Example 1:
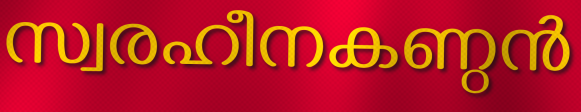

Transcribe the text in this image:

സ്വരഹീനകണ്ഠൻ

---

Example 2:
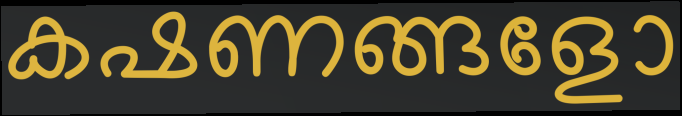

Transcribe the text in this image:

കഷണങ്ങളോ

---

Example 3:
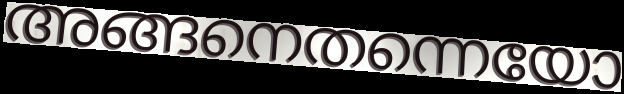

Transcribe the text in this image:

അങ്ങനെതന്നെയോ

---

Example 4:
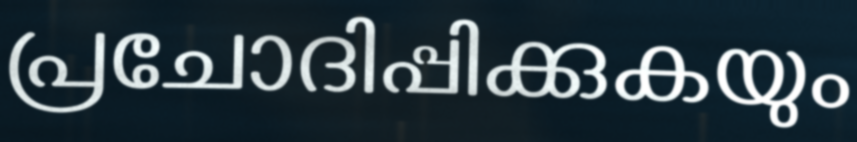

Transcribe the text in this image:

പ്രചോദിപ്പിക്കുകയും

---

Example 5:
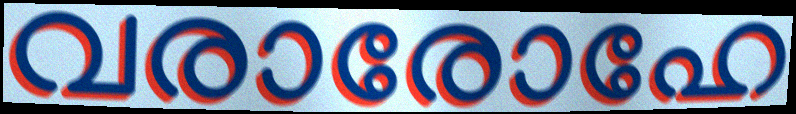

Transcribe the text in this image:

വരാരോഹേ